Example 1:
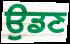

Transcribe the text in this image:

ਉਡਣ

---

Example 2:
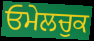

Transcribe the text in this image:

ਓਮੇਲਚੁਕ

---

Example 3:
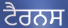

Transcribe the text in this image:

ਟੈਰਨਸ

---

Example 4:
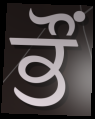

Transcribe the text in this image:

ਭੌਂ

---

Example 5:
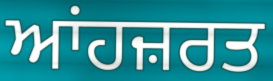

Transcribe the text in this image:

ਆਂਹਜ਼ਰਤ